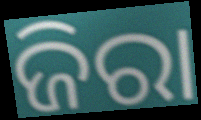
ଜିରା